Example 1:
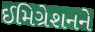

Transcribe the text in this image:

ઈમિગ્રેશનને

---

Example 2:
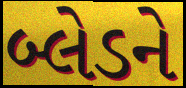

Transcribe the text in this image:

બ્લેડને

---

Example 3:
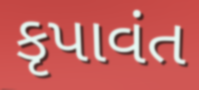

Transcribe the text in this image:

કૃપાવંત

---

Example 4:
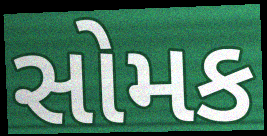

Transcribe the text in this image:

સોમક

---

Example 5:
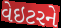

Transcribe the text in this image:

વેઇટરને